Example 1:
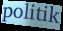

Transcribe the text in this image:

politik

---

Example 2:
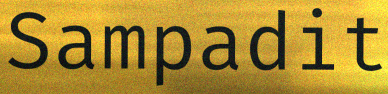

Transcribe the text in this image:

Sampadit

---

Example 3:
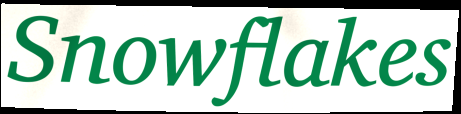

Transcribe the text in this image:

Snowflakes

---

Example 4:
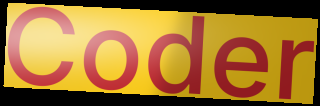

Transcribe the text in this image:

Coder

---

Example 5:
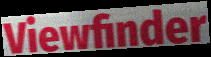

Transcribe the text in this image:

Viewfinder